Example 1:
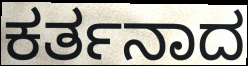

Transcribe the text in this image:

ಕರ್ತನಾದ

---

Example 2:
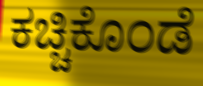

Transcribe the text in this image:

ಕಚ್ಚಿಕೊಂಡೆ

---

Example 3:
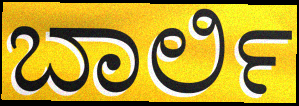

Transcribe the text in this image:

ಬಾರ್ಲಿ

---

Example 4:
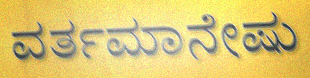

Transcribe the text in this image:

ವರ್ತಮಾನೇಷು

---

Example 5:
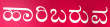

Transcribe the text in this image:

ಹಾರಿಬರುವ